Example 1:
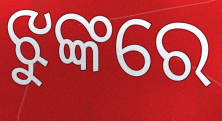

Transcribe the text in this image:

ଝୁଙ୍କରେ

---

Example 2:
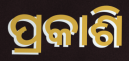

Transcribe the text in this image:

ପ୍ରକାଶି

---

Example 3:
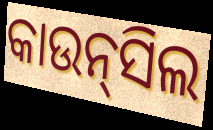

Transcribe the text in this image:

କାଉନ୍‍ସିଲ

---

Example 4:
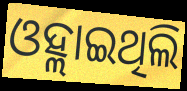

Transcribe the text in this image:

ଓହ୍ଲାଇଥିଲି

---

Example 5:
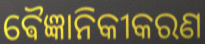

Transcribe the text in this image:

ଵୈଜ୍ଞାନିକୀକରଣ